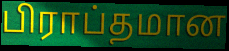
பிராப்தமான